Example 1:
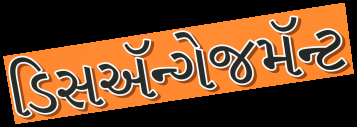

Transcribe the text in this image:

ડિસઍન્ગેજમૅન્ટ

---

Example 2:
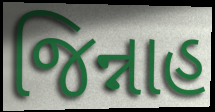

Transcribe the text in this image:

જિન્નાહ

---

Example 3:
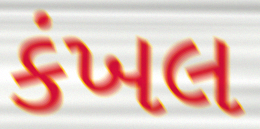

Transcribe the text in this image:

કંખલ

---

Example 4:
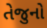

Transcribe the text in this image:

તેજુનો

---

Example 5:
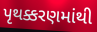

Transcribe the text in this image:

પૃથક્કરણમાંથી